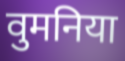
वुमनिया